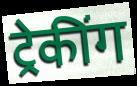
ट्रेकींग